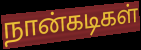
நான்கடிகள்